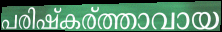
പരിഷ്കര്ത്താവായ